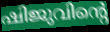
ഷിജുവിന്റെ